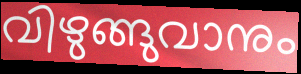
വിഴുങ്ങുവാനും